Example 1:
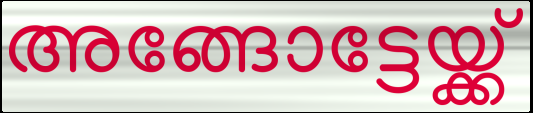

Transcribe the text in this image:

അങ്ങോട്ടേയ്ക്ക്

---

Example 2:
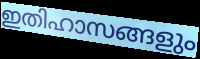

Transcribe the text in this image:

ഇതിഹാസങ്ങളും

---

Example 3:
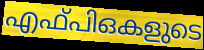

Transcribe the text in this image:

എഫ്പിഒകളുടെ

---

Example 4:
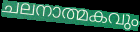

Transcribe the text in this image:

ചലനാത്മകവും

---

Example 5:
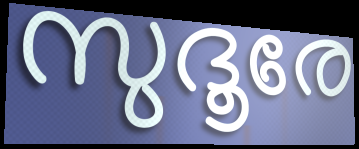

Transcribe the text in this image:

സുദൂരേ